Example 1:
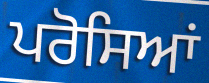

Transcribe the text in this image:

ਪਰੋਸਿਆਂ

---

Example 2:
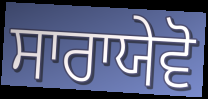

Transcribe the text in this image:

ਸਾਰਾਯੇਵੋ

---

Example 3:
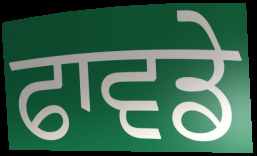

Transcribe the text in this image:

ਫਾਵਡੇ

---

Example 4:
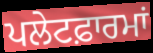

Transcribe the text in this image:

ਪਲੇਟਫ਼ਾਰਮਾਂ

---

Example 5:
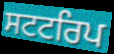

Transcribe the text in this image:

ਸਟਟਰਿਪ